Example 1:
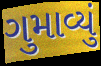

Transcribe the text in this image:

ગુમાવ્યું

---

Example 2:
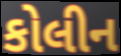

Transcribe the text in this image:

કોલીન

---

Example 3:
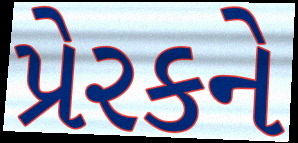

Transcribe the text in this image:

પ્રેરકને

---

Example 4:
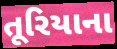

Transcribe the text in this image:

તૂરિયાના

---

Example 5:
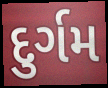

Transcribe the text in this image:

દુર્ગમ